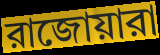
রাজোয়ারা